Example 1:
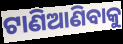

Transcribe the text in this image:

ଟାଣିଆଣିବାକୁ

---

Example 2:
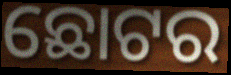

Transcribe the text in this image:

ଛୋଟର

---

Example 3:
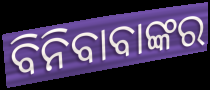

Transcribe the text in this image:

ବିନିବାବାଙ୍କର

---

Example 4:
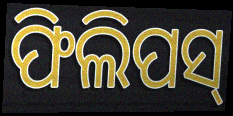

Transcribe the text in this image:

ଫିଲିପସ୍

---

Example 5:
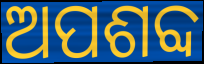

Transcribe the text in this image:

ଅପଶବ୍ଦ